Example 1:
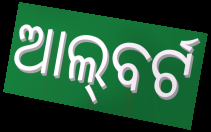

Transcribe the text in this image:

ଆଲ୍‌ବର୍ଟ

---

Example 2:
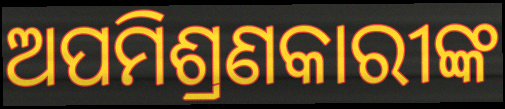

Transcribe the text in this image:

ଅପମିଶ୍ରଣକାରୀଙ୍କ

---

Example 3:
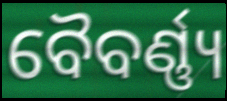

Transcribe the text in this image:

ବୈବର୍ଣ୍ଣ୍ୟ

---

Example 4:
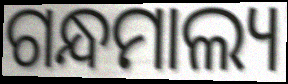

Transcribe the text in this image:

ଗନ୍ଧମାଲ୍ୟ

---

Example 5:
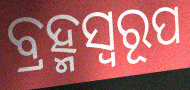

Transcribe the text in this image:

ବ୍ରହ୍ମସ୍ୱରୂପ